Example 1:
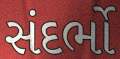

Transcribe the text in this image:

સંદર્ભો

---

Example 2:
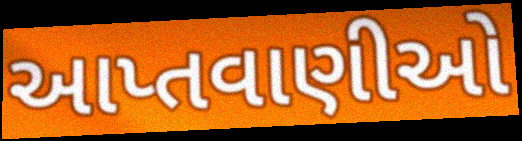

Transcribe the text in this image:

આપ્તવાણીઓ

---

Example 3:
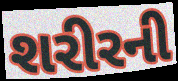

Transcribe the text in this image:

શરીરની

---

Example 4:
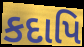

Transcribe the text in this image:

કદાપિ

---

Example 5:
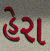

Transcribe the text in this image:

હેરા